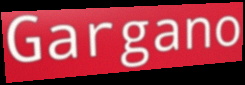
Gargano